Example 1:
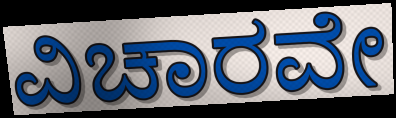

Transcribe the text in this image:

ವಿಚಾರವೇ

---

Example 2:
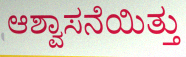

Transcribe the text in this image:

ಆಶ್ವಾಸನೆಯಿತ್ತು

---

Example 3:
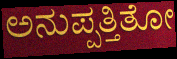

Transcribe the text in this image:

ಅನುಪ್ಪತ್ತಿತೋ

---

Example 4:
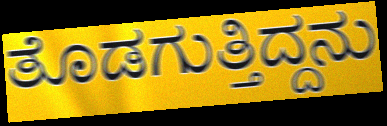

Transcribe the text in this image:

ತೊಡಗುತ್ತಿದ್ದನು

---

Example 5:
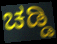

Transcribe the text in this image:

ಚಡ್ಡಿ